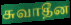
சுவாதீன